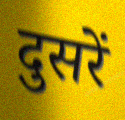
दुसरें